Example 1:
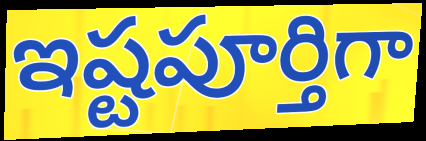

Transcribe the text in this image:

ఇష్టపూర్తిగా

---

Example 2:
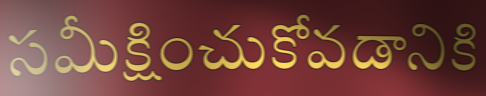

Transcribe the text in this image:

సమీక్షించుకోవడానికి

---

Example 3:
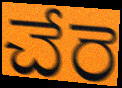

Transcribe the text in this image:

చేరె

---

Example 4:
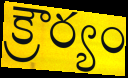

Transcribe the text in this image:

క్రౌర్యం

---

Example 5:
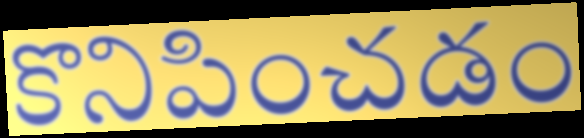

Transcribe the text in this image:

కొనిపించడం